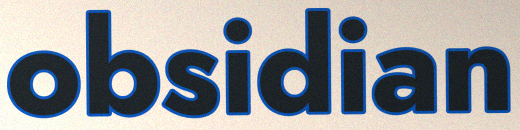
obsidian